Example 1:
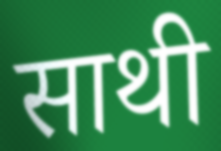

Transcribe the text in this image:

साथी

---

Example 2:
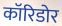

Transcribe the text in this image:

कॉरिडोर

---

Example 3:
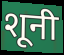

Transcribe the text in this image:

शूनी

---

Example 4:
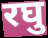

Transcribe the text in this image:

रघु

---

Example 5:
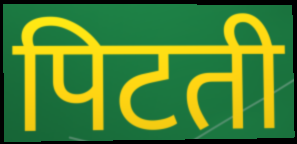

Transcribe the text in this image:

पिटती